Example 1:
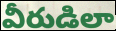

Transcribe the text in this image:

వీరుడిలా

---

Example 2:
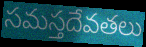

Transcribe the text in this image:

సమస్తదేవతలు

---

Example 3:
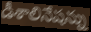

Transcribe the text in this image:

డీశాలినేషన్ను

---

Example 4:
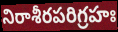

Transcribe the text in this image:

నిరాశీరపరిగ్రహః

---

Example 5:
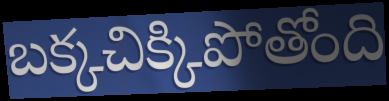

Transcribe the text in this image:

బక్కచిక్కిపోతోంది